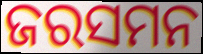
ଜରସମନ